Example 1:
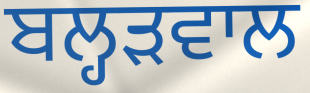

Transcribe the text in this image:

ਬਲ੍ਹੜਵਾਲ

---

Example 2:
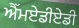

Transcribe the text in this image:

ਐੱਮਏਡੀਏਡੀ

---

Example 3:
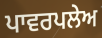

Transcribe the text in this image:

ਪਾਵਰਪਲੇਅ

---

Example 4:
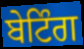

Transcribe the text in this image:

ਬੇਟਿੰਗ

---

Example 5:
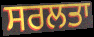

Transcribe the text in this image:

ਸਰਲਤਾ